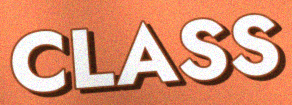
CLASS